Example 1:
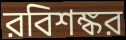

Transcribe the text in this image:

রবিশঙ্কর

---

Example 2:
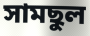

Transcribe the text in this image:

সামছুল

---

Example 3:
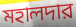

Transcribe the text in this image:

মহালদার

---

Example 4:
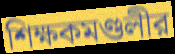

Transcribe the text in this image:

শিক্ষকমণ্ডলীর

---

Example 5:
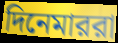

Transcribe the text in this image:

দিনেমাররা